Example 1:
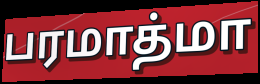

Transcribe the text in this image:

பரமாத்மா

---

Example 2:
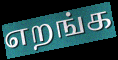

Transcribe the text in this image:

எறங்க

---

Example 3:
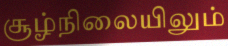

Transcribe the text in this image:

சூழ்நிலையிலும்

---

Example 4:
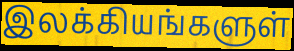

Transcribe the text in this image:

இலக்கியங்களுள்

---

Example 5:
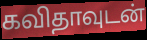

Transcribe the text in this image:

கவிதாவுடன்